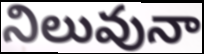
నిలువునా